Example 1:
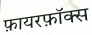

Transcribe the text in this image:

फ़ायरफ़ॉक्स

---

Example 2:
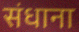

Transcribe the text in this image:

संधाना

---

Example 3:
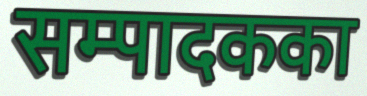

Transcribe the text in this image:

सम्पादकका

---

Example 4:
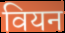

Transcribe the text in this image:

वियन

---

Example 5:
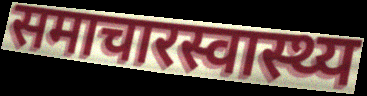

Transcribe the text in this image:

समाचारस्वास्थ्य